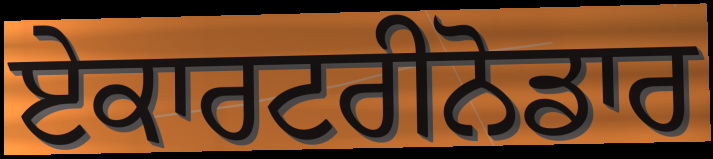
ਏਕਾਰਟਰੀਨੋਡਾਰ